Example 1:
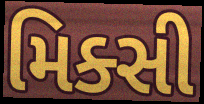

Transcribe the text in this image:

મિક્સી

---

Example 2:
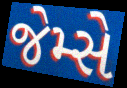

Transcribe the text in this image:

જેમ્સે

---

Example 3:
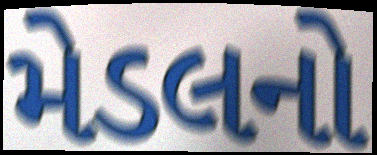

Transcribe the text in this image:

મેડલનો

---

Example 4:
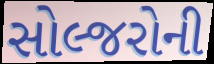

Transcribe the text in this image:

સોલ્જરોની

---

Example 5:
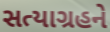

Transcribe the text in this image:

સત્યાગ્રહને